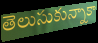
తెలుసుకున్నాకా